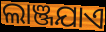
ଲାଞ୍ଜଯାଏ